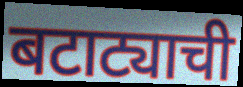
बटाट्याची